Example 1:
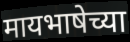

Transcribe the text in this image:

मायभाषेच्या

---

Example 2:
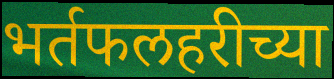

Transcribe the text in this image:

भर्तफलहरीच्या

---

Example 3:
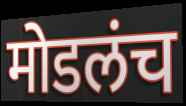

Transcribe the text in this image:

मोडलंच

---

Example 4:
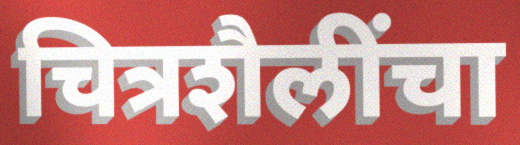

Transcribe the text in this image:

चित्रशैलींचा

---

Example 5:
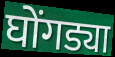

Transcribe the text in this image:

घोंगड्या